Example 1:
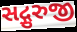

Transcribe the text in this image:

સદ્ગુરુજી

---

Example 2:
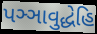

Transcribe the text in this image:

પઞ્ઞાવુદ્ધેહિ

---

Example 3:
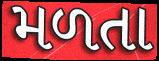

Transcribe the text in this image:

મળતા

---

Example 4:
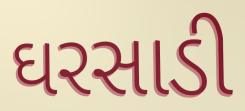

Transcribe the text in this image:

ઘરસાડી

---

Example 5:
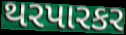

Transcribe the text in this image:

થરપારકર